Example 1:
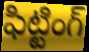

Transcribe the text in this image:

ఫిట్టింగ్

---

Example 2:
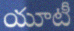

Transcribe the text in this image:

యూటీ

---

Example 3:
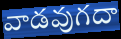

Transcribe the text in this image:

వాడవుగదా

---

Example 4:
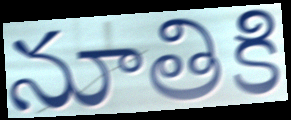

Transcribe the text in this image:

నూతికి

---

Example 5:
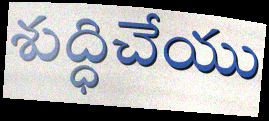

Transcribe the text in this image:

శుద్ధిచేయు